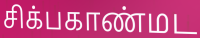
சிக்பகாண்மட